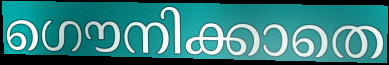
ഗൌനിക്കാതെ